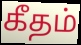
கீதம்